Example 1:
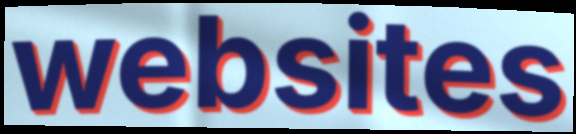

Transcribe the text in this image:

websites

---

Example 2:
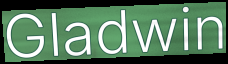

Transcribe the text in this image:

Gladwin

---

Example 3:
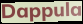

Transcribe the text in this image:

Dappula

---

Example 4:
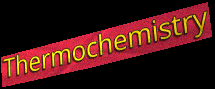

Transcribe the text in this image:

Thermochemistry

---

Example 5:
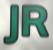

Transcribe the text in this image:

JR